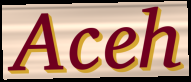
Aceh